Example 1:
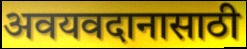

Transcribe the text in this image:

अवयवदानासाठी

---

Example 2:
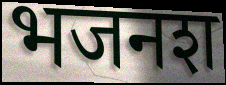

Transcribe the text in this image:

भजनश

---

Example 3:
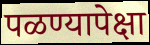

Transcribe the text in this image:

पळण्यापेक्षा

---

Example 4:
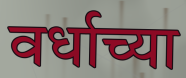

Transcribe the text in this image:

वर्धाच्या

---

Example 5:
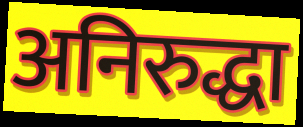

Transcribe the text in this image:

अनिरुद्धा